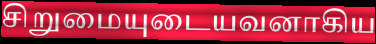
சிறுமையுடையவனாகிய